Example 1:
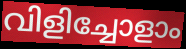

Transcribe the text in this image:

വിളിച്ചോളാം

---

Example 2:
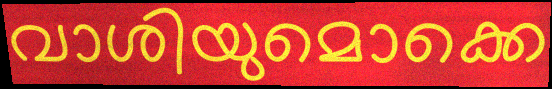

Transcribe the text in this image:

വാശിയുമൊക്കെ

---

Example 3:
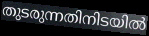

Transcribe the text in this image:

തുടരുന്നതിനിടയിൽ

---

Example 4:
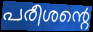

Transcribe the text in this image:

പരീശന്റെ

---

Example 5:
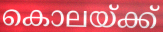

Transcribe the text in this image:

കൊലയ്ക്ക്